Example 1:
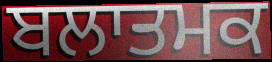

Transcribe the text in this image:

ਬਲਾਤਮਕ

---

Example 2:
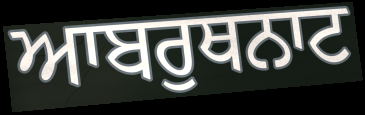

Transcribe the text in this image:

ਆਬਰੁਥਨਾਟ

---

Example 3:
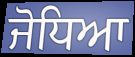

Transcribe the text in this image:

ਜੋਧਿਆ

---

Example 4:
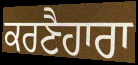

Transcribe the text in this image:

ਕਰਣੈਹਾਰਾ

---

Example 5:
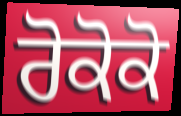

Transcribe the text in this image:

ਰੋਕੋਕੋ